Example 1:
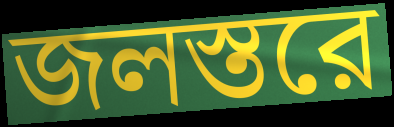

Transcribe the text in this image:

জলস্তরে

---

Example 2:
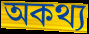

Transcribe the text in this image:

অকথ্য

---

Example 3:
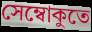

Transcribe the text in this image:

সেম্বোকুতে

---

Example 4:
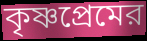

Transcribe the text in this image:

কৃষ্ণপ্রেমের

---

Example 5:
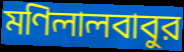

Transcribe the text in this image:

মণিলালবাবুর